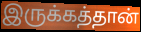
இருக்கத்தான்